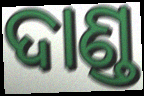
ଦାଣ୍ଡ